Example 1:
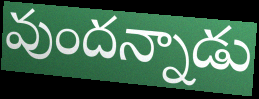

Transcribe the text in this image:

వుందన్నాడు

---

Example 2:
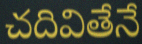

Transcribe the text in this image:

చదివితేనే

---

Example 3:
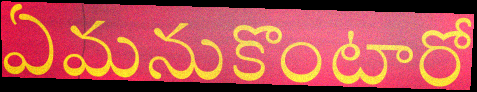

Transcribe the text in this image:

ఏమనుకొంటారో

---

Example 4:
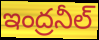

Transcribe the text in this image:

ఇంద్రనీల్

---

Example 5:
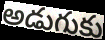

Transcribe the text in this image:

అడుగుకు